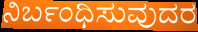
ನಿರ್ಬಂಧಿಸುವುದರ